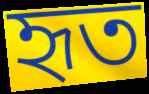
হৃত